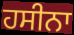
ਹਸੀਨਾ